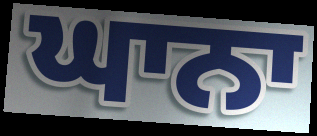
ਘਾਨਾ